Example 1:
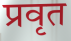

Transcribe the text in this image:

प्रवृत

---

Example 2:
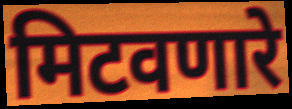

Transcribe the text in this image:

मिटवणारे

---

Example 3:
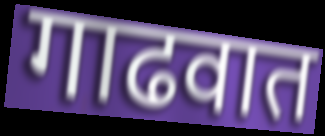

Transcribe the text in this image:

गाढवात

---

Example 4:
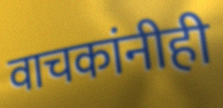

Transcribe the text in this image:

वाचकांनीही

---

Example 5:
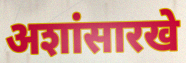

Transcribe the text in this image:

अशांसारखे